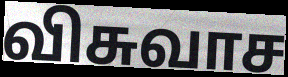
விசுவாச